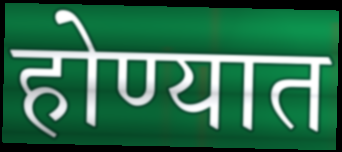
होण्यात